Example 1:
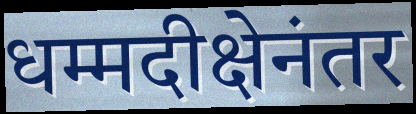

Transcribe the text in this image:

धम्मदीक्षेनंतर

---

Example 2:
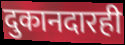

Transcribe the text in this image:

दुकानदारही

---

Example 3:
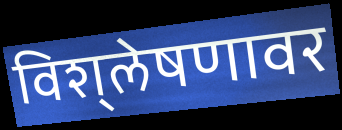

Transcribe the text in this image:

विश्लेषणावर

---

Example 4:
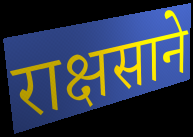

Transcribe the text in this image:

राक्षसाने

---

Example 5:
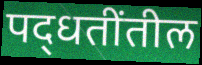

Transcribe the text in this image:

पद्धतींतील